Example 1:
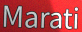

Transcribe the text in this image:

Marati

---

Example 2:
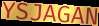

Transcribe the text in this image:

YSJAGAN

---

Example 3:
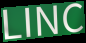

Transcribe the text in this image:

LINC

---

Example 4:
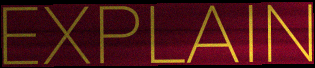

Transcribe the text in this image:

EXPLAIN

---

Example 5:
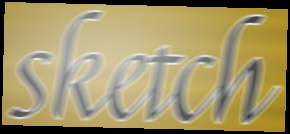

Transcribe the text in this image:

sketch